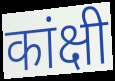
कांक्षी